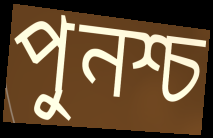
পুনশ্চ